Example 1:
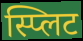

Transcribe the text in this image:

स्प्लिट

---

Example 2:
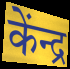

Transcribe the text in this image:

केंन्द्र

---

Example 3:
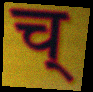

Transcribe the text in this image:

च्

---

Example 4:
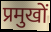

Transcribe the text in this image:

प्रमुखों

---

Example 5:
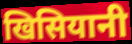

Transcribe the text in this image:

खिसियानी